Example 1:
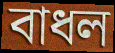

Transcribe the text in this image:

বাধল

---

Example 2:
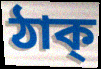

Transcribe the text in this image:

ঠাক্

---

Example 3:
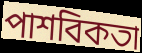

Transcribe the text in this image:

পাশবিকতা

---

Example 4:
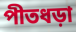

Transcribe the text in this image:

পীতধড়া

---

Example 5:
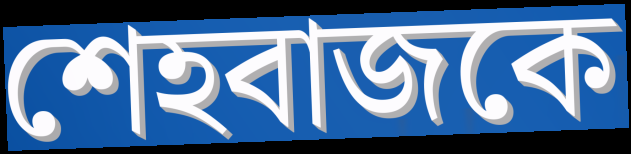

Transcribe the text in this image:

শেহবাজকে